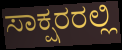
ಸಾಕ್ಷರರಲ್ಲಿ